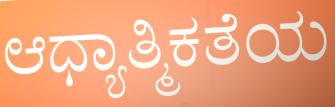
ಆಧ್ಯಾತ್ಮಿಕತೆಯ